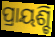
ପ୍ରାୟଶ୍ଚି